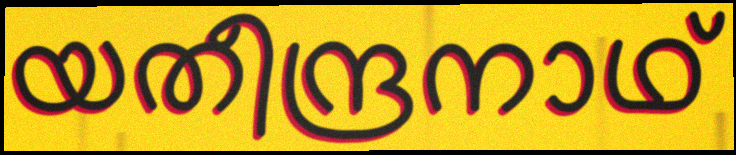
യതീന്ദ്രനാഥ്